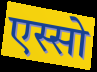
एस्सो